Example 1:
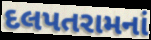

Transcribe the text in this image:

દલપતરામનાં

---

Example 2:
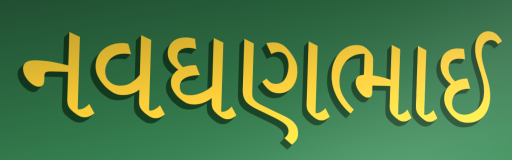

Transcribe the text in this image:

નવઘણભાઈ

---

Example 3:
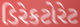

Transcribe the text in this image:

ડિરેકટોરેટ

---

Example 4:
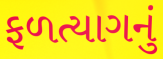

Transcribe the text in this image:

ફળત્યાગનું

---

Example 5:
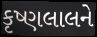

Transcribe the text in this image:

કૃષ્ણલાલને